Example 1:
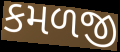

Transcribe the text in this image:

કમળજી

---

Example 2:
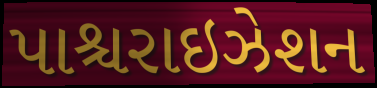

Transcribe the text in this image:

પાશ્ચરાઇઝેશન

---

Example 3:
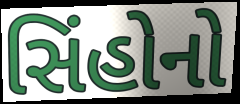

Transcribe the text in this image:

સિંહોનો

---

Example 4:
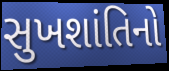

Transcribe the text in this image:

સુખશાંતિનો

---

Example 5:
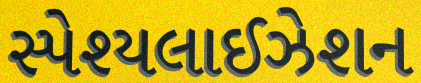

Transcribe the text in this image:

સ્પેશ્યલાઈઝેશન